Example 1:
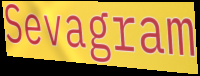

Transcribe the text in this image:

Sevagram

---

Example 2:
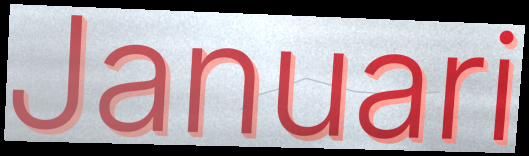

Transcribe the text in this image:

Januari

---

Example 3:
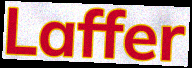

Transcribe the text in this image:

Laffer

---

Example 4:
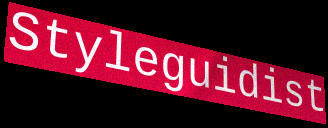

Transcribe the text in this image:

Styleguidist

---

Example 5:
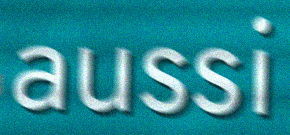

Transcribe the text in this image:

aussi